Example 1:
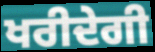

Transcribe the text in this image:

ਖਰੀਦੇਗੀ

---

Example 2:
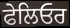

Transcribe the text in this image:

ਫੇਲਿਓਰ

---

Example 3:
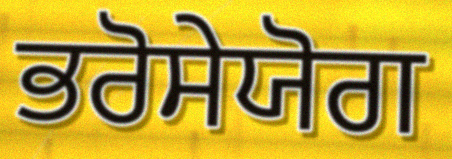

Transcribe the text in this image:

ਭਰੋਸੇਯੋਗ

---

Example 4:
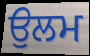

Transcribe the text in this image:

ਉਲਮ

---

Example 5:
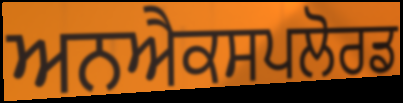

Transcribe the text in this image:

ਅਨਐਕਸਪਲੋਰਡ